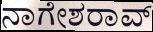
ನಾಗೇಶರಾವ್